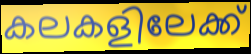
കലകളിലേക്ക്